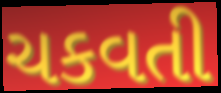
ચકવતી